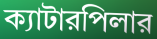
ক্যাটারপিলার